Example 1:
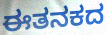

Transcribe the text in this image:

ಈತನಕದ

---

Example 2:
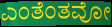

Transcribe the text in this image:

ಎಂತೆಂತವೋ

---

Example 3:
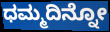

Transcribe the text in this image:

ಧಮ್ಮದಿನ್ನೋ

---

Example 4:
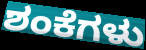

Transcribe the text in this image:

ಶಂಕೆಗಳು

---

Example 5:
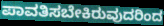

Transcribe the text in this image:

ಪಾವತಿಸಬೇಕಿರುವುದರಿಂದ